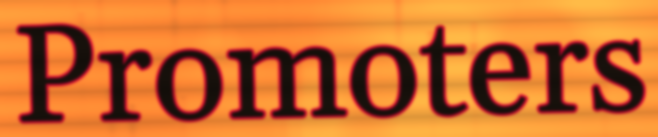
Promoters